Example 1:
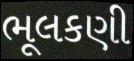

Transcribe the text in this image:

ભૂલકણી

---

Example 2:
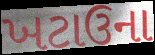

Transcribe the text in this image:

ખટાઉના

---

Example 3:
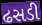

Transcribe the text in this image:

ઢસડી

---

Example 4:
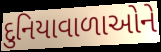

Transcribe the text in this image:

દુનિયાવાળાઓને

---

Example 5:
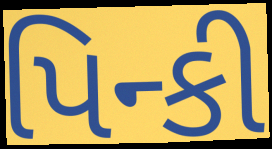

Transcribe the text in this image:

પિન્કી